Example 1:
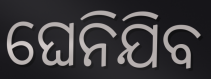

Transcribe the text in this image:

ଘେନିଯିବ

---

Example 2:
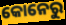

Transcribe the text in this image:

କୋନେରୁ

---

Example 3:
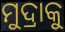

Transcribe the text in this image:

ମୁଦ୍ରାକୁ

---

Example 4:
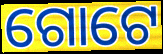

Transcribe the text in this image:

ଗୋଟେ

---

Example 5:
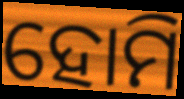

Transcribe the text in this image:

ହୋମି